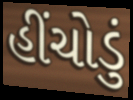
હીંચોડું